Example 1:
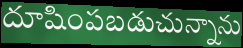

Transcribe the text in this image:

దూషింపబడుచున్నాను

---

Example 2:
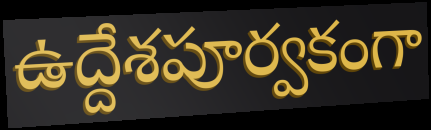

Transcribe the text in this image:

ఉద్దేశపూర్వకంగా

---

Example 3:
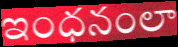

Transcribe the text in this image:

ఇంధనంలా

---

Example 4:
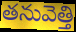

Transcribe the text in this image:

తనువెత్తి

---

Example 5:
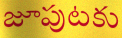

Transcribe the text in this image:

జూపుటకు